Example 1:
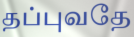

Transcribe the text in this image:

தப்புவதே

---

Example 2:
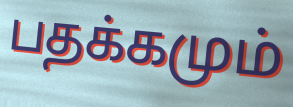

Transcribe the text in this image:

பதக்கமும்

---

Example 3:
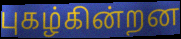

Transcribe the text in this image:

புகழ்கின்றன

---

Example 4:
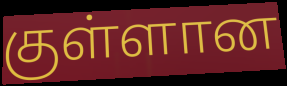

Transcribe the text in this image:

குள்ளான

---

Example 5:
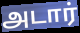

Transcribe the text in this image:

அடார்